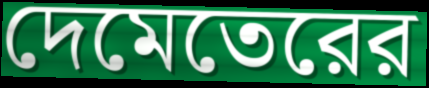
দেমেতেরের